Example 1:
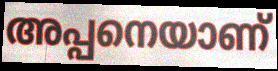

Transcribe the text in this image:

അപ്പനെയാണ്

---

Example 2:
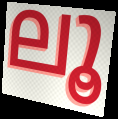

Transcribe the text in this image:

ലൂ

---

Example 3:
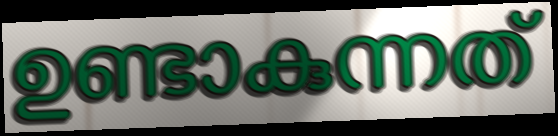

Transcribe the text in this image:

ഉണ്ടാകുന്നത്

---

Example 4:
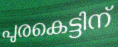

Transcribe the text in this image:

പുരകെട്ടിന്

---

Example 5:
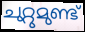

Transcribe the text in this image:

ചുറ്റുമുണ്ട്